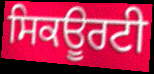
ਸਿਕਊਰਟੀ